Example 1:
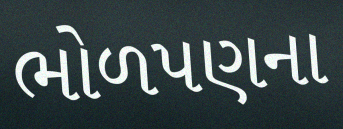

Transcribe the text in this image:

ભોળપણના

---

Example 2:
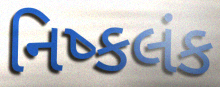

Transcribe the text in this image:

નિષ્કલંક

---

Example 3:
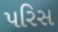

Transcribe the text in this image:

પરિસ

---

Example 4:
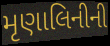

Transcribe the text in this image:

મૃણાલિનીની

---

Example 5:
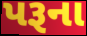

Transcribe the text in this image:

પરૂના